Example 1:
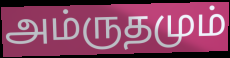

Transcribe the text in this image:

அம்ருதமும்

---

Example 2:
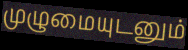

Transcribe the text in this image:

முழுமையுடனும்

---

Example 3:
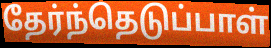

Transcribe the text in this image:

தேர்ந்தெடுப்பாள்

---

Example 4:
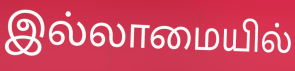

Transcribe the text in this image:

இல்லாமையில்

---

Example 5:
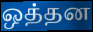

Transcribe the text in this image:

ஒத்தன